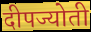
दीपज्योती